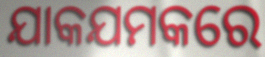
ଯାକଯମକରେ